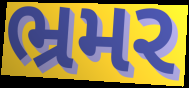
ભ્રમર